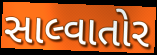
સાલ્વાતોર